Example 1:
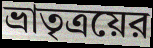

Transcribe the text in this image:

ভ্রাতৃত্রয়ের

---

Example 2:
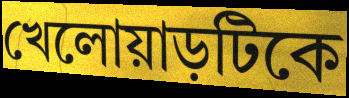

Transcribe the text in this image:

খেলোয়াড়টিকে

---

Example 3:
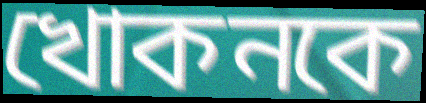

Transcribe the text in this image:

খোকনকে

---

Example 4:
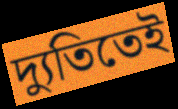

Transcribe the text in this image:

দ্যুতিতেই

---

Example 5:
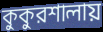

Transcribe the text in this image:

কুকুরশালায়